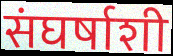
संघर्षाशी